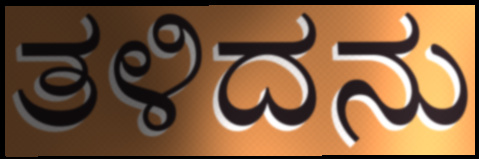
ತಳಿದನು